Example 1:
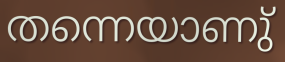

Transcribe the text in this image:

തന്നെയാണു്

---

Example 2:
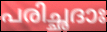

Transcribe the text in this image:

പരിച്ഛദാഃ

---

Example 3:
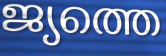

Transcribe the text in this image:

ജ്യത്തെ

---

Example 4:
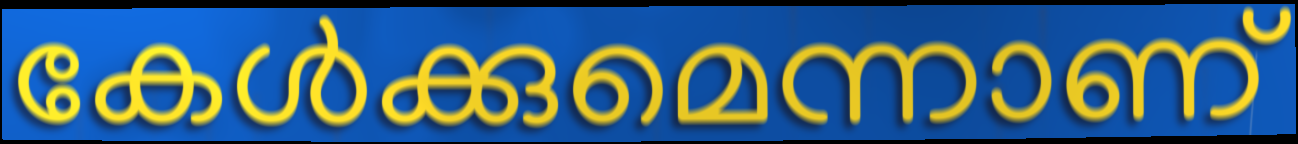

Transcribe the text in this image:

കേൾക്കുമെന്നാണ്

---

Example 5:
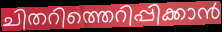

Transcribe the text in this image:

ചിതറിത്തെറിപ്പിക്കാൻ